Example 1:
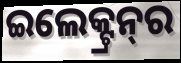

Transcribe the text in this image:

ଇଲେକ୍ଟ୍ରନ୍‌ର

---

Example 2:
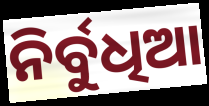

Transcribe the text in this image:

ନିର୍ବୁଧିଆ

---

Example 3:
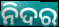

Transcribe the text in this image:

ନିଦର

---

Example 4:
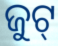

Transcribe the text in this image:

ଜୁଟ୍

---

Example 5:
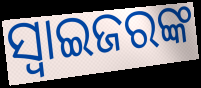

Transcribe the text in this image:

ସ୍ଵାଇଜରଙ୍କ